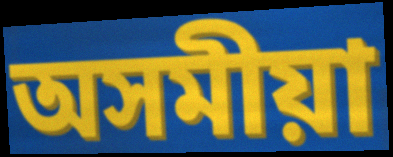
অসমীয়া